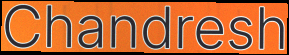
Chandresh